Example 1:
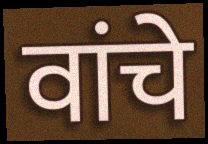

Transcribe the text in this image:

वांचे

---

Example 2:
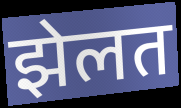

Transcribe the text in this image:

झेलत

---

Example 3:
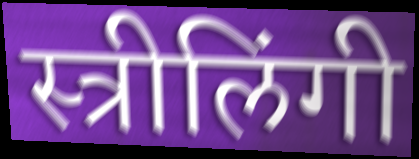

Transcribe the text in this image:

स्त्रीलिंगी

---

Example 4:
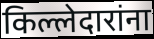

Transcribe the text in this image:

किल्लेदारांना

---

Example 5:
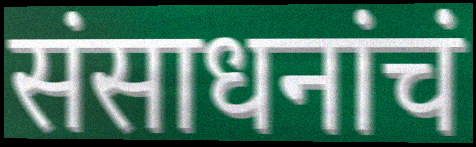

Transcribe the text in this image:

संसाधनांचं